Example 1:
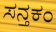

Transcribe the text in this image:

ಸನ್ತಕಂ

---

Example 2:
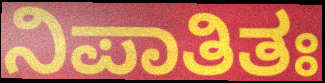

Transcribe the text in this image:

ನಿಪಾತಿತಃ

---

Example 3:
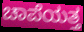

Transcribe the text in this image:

ಚಾಪೆಯತ್ತ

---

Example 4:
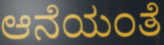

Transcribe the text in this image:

ಆನೆಯಂತೆ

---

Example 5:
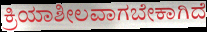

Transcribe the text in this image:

ಕ್ರಿಯಾಶೀಲವಾಗಬೇಕಾಗಿದೆ